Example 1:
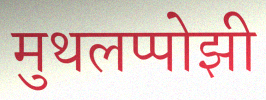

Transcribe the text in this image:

मुथलप्पोझी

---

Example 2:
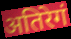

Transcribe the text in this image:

अतिरेगं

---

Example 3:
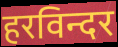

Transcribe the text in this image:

हरविन्दर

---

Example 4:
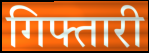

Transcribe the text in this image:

गिफ्तारी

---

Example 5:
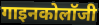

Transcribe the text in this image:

गाइनकोलॉजी